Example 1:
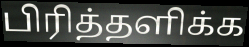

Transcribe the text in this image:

பிரித்தளிக்க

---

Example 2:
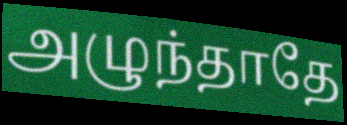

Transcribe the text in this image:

அழுந்தாதே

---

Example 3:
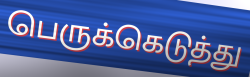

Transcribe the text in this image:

பெருக்கெடுத்து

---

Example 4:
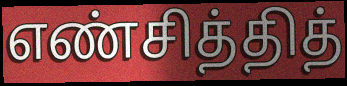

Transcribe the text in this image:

எண்சித்தித்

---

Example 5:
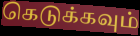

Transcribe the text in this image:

கெடுக்கவும்